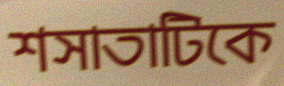
শসাতাটিকে